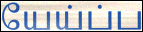
யேய்ப்ப